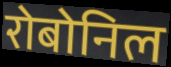
रोबोनिल